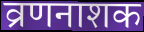
व्रणनाशक